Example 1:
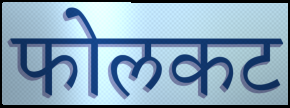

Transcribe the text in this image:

फोलकट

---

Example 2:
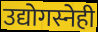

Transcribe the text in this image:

उद्योगस्नेही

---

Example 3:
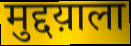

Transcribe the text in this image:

मुद्दय़ाला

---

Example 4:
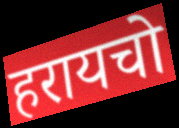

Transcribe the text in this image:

हरायचो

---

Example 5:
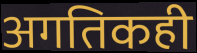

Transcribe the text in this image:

अगतिकही